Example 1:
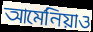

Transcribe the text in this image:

আর্মেনিয়াও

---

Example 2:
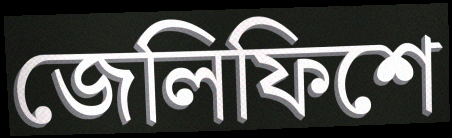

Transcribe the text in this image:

জেলিফিশে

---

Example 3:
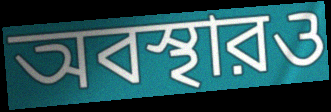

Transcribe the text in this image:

অবস্থারও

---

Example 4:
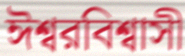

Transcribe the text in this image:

ঈশ্বরবিশ্বাসী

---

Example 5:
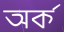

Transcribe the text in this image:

অর্ক